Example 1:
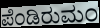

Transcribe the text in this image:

ಪೆಂಡಿರುಮಂ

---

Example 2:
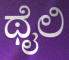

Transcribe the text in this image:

ಥೈಲಿ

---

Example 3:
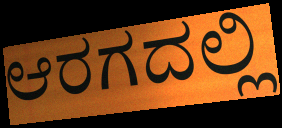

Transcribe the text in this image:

ಆರಗದಲ್ಲಿ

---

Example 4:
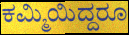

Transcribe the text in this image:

ಕಮ್ಮಿಯಿದ್ದರೂ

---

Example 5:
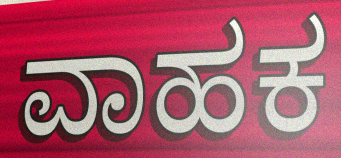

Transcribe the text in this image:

ವಾಹಕ